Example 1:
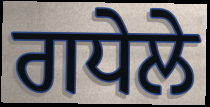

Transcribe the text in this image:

ਗਧੇਲੇ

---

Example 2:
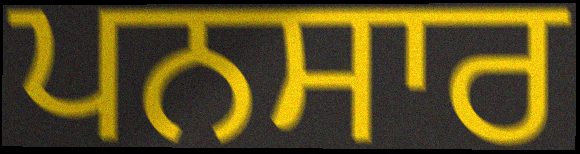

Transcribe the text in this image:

ਪਨਸਾਰ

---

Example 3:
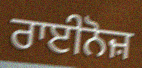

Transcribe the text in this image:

ਰਾਈਨੋਜ਼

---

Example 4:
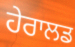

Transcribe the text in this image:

ਹੇਰਾਲਡ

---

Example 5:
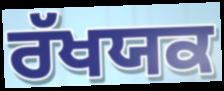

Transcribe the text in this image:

ਰੱਖਯਕ